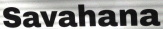
Savahana